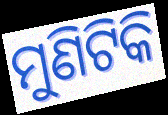
ମୁଣିଟିକି